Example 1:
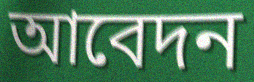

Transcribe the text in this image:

আবেদন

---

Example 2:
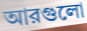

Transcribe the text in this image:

আরগুলো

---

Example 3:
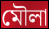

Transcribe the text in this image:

মৌলা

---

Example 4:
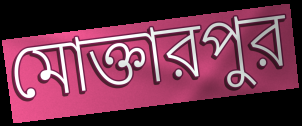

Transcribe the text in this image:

মোক্তারপুর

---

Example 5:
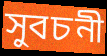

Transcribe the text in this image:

সুবচনী